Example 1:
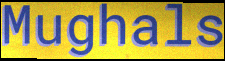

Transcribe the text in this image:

Mughals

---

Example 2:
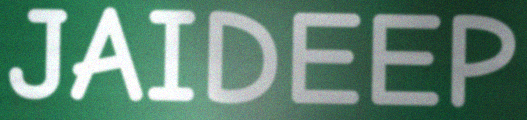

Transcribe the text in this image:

JAIDEEP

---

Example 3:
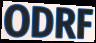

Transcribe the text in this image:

ODRF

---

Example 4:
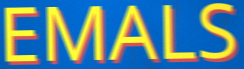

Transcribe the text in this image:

EMALS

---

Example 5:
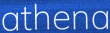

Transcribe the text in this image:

athena